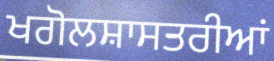
ਖਗੋਲਸ਼ਾਸਤਰੀਆਂ